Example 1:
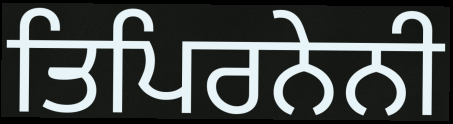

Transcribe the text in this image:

ਤਿਪਿਰਨੇਨੀ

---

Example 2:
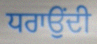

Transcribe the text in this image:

ਧਰਾਉਂਦੀ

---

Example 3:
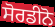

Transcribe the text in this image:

ਸੋਰਡੀਨੋ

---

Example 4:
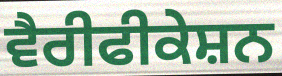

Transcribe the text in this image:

ਵੈਰੀਫੀਕੇਸ਼ਨ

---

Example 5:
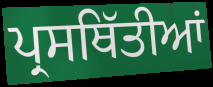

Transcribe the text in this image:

ਪ੍ਰਸਥਿੱਤੀਆਂ